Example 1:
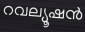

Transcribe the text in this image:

റവല്യൂഷൻ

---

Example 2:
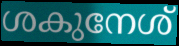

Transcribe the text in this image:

ശകുനേശ്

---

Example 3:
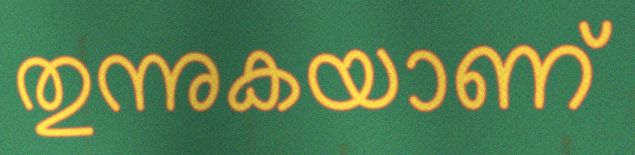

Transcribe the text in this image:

തുന്നുകയാണ്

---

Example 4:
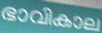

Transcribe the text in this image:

ഭാവികാല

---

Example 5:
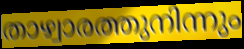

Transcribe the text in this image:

താഴ്വാരത്തുനിന്നും